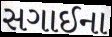
સગાઈના